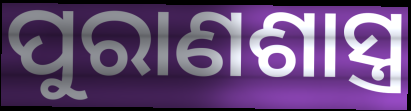
ପୁରାଣଶାସ୍ତ୍ର